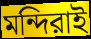
মন্দিরাই